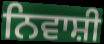
ਨਿਵਾਸ਼ੀ